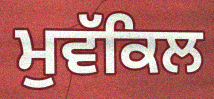
ਮੁਵੱਕਿਲ